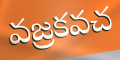
వజ్రకవచ